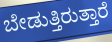
ಬೇಡುತ್ತಿರುತ್ತಾರೆ